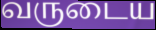
வருடைய